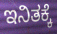
ಇನಿತಕ್ಕೆ